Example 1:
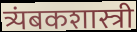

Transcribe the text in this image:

त्र्यंबकशास्त्री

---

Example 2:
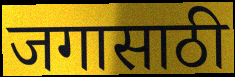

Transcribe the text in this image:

जगासाठी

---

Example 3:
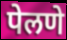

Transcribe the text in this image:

पेलणे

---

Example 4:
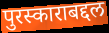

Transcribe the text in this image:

पुरस्काराबद्दल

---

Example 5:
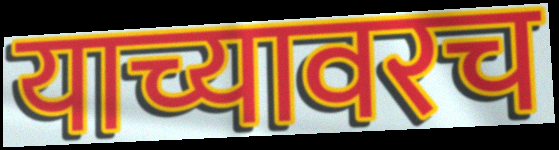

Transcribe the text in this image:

याच्यावरच